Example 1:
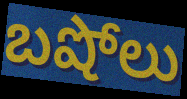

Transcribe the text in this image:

బషోలు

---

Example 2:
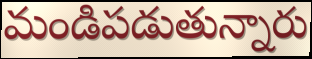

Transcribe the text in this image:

మండిపడుతున్నారు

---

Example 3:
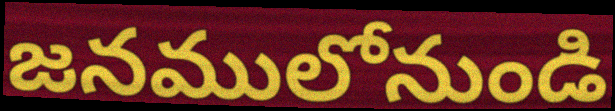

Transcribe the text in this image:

జనములోనుండి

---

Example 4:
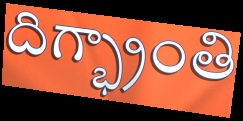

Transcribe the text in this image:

దిగ్భ్రాంతి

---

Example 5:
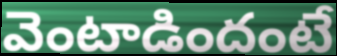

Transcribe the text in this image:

వెంటాడిందంటే